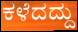
ಕಳೆದದ್ದು